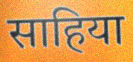
साहिया